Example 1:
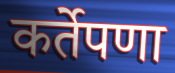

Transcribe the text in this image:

कर्तेपणा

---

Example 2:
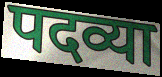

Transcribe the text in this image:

पदव्या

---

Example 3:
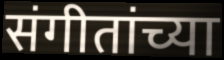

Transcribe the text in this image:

संगीतांच्या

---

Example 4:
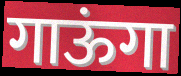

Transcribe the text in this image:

गाऊंगा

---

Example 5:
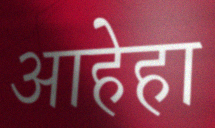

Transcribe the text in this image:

आहेहा